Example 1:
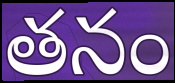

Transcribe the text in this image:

తనం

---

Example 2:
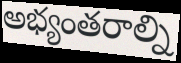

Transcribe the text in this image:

అభ్యంతరాల్ని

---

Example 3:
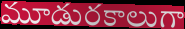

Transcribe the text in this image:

మూడురకాలుగా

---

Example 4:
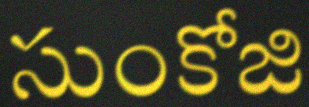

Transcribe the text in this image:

సుంకోజి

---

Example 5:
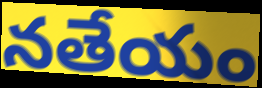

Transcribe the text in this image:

నతేయం